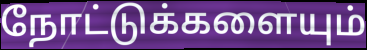
நோட்டுக்களையும்